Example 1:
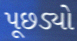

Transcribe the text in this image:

પૂછડ્યો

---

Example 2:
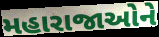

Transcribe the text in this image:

મહારાજાઓને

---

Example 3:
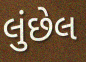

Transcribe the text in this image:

લુંછેલ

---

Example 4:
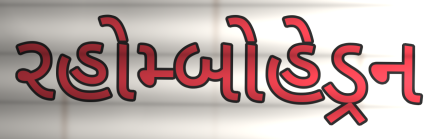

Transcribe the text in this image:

રહોમ્બોહેડ્રન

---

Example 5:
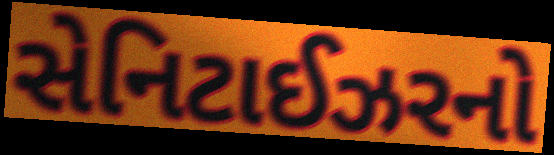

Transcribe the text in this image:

સેનિટાઈઝરનો